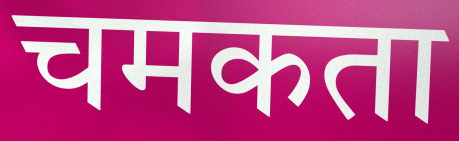
चमकता